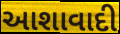
આશાવાદી